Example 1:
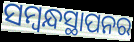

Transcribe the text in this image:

ସମ୍ବନ୍ଧସ୍ଥାପନର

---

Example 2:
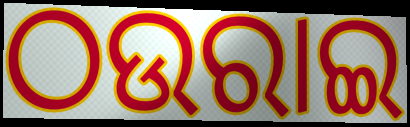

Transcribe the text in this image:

ଠଉରାଇ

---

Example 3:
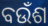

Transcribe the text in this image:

ବଉଁଶ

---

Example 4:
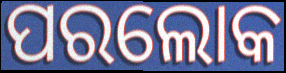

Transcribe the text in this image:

ପରଲୋକ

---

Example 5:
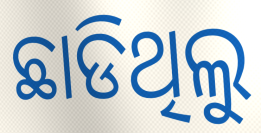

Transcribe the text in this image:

ଛାଡିଥିଲୁ